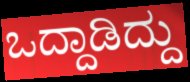
ಒದ್ದಾಡಿದ್ದು